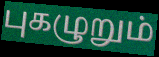
புகழுறும்